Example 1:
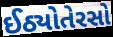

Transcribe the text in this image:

ઈઠ્યોતેરસો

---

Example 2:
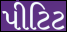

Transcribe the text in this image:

પીટિટ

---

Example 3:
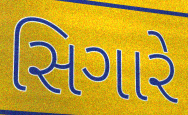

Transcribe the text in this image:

સિગારે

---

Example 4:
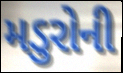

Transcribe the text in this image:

મડુરોની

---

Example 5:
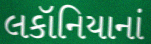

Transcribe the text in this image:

લકૉનિયાનાં